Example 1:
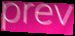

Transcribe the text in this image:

prev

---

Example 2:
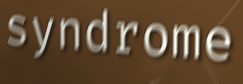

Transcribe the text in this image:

syndrome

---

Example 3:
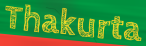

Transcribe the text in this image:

Thakurta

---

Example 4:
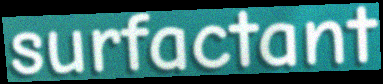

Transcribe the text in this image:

surfactant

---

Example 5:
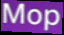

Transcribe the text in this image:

Mop